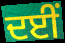
ਦਈਂ